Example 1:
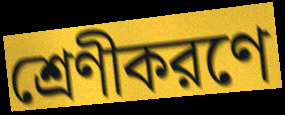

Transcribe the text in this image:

শ্রেণীকরণে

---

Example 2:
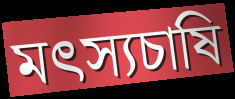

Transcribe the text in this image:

মৎস্যচাষি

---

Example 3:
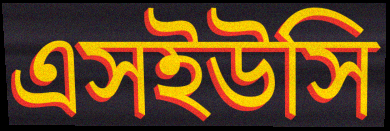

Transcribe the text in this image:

এসইউসি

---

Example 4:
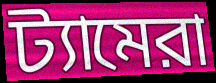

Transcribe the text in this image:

ট্যামেরা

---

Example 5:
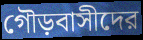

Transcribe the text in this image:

গৌড়বাসীদের